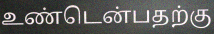
உண்டென்பதற்கு